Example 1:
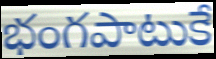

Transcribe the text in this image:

భంగపాటుకే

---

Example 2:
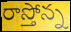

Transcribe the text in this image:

రాస్తోన్న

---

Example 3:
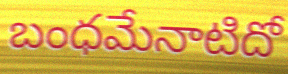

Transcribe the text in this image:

బంధమేనాటిదో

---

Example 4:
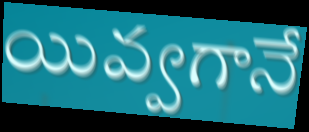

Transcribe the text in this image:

యివ్వగానే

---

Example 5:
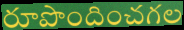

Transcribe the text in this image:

రూపొందించగల